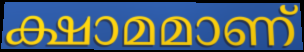
ക്ഷാമമാണ്